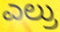
ಎಲ್ರು